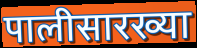
पालीसारख्या